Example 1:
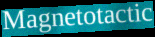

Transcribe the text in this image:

Magnetotactic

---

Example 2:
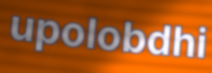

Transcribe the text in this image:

upolobdhi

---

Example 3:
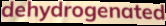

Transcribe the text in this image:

dehydrogenated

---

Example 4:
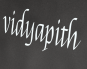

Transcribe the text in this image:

vidyapith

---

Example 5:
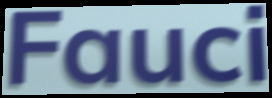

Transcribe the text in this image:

Fauci